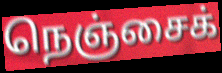
நெஞ்சைக்